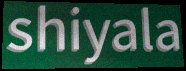
shiyala